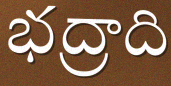
భద్రాది